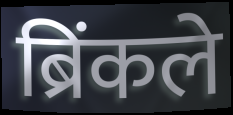
ब्रिंकले